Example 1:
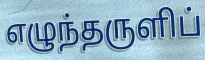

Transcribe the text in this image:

எழுந்தருளிப்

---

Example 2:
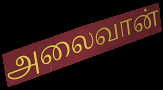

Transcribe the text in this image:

அலைவான்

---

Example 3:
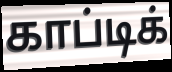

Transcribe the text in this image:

காப்டிக்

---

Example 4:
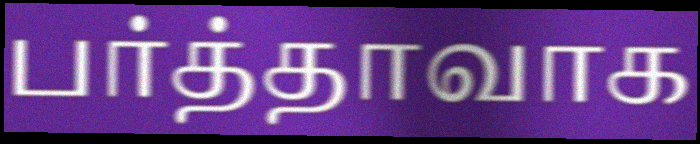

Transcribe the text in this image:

பர்த்தாவாக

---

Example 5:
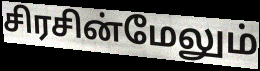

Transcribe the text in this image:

சிரசின்மேலும்